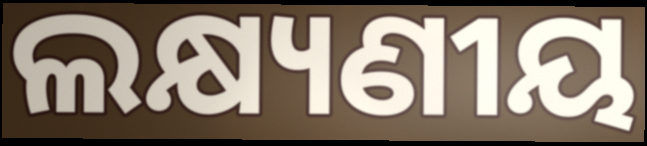
ଲକ୍ଷ୍ୟଣୀୟ